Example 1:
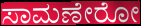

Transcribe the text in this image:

ಸಾಮಣೇರೋ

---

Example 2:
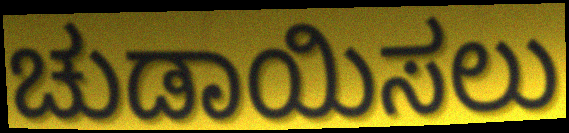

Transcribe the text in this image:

ಚುಡಾಯಿಸಲು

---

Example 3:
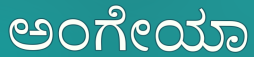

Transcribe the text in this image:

ಅಂಗೇಯಾ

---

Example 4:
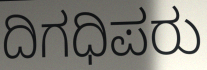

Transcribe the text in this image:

ದಿಗಧಿಪರು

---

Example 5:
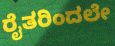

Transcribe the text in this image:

ರೈತರಿಂದಲೇ